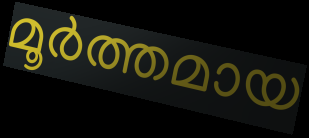
മൂർത്തമായ